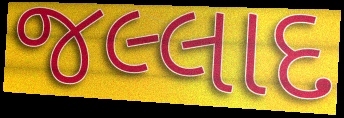
જલ્લાદ